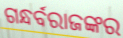
ଗନ୍ଧର୍ବରାଜଙ୍କର